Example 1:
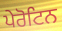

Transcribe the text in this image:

ਪੇਰੋਟਿਨ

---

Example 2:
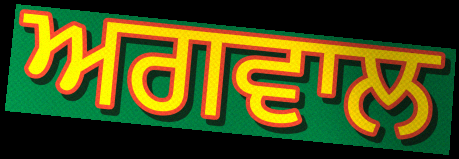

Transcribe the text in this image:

ਅਗਵਾਲ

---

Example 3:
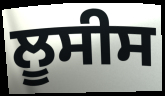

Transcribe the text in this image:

ਲੂਸੀਸ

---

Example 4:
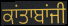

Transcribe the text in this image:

ਕਾਂਤਾਬਾਂਜੀ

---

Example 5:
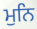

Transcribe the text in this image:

ਮੁਨਿ